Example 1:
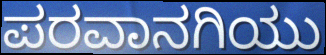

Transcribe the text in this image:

ಪರವಾನಗಿಯು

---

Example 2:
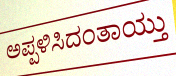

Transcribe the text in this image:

ಅಪ್ಪಳಿಸಿದಂತಾಯ್ತು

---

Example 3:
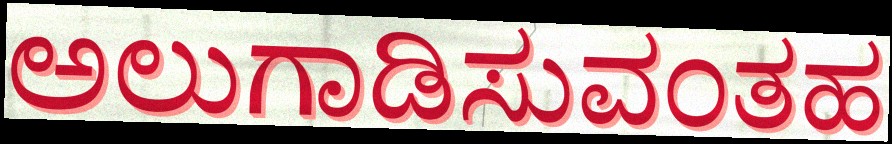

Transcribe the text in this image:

ಅಲುಗಾಡಿಸುವಂತಹ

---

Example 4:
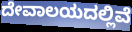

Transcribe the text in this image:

ದೇವಾಲಯದಲ್ಲಿವೆ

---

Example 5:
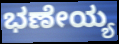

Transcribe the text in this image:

ಭಣೇಯ್ಯ